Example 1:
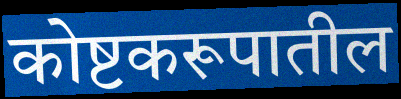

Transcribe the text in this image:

कोष्टकरूपातील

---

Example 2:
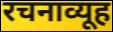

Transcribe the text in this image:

रचनाव्यूह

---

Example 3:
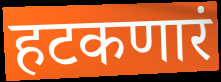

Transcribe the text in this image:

हटकणारं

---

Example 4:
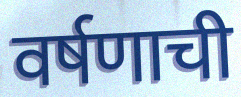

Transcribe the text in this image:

वर्षणाची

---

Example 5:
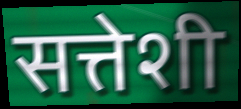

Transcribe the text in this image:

सत्तेशी